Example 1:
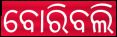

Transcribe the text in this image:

ବୋରିବଲି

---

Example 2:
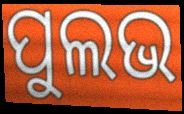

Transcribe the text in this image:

ପୁଲଭ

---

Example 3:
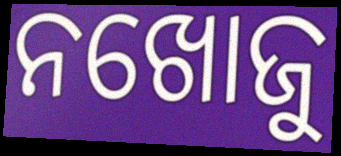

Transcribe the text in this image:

ନଖୋଜୁ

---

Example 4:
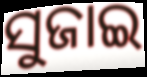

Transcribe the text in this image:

ସୁଜାଇ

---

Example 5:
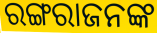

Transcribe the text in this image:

ରଙ୍ଗରାଜନଙ୍କ